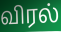
விரல்